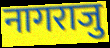
नागराजु